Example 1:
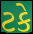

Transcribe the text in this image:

ટકે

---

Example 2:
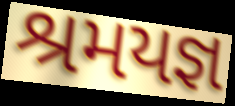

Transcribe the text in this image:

શ્રમયજ્ઞ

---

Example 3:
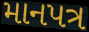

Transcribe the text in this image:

માનપત્ર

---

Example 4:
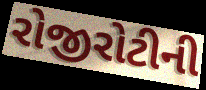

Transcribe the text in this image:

રોજીરોટીની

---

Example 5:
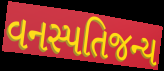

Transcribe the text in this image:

વનસ્પતિજન્ય